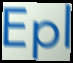
Epl